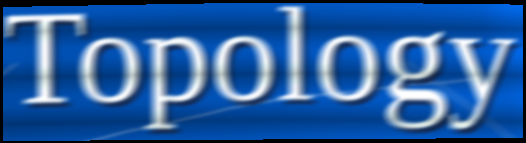
Topology